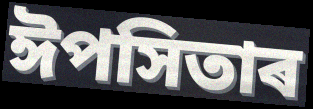
ঈপসিতাৰ